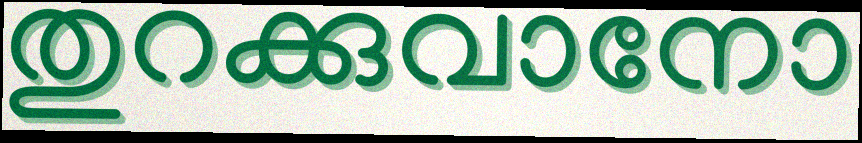
തുറക്കുവാനോ